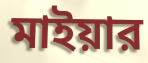
মাইয়ার